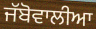
ਜੱਬੋਵਾਲੀਆ